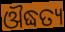
ଔଦ୍ଧତ୍ୟ